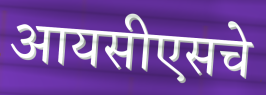
आयसीएसचे